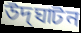
উদ্‌ঘাটন